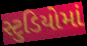
સ્ટુડિયોમાં